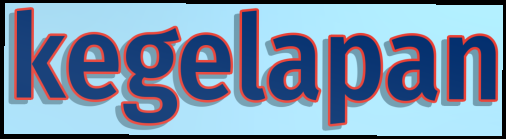
kegelapan